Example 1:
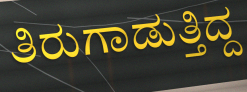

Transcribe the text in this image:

ತಿರುಗಾಡುತ್ತಿದ್ದ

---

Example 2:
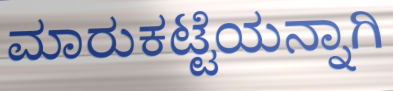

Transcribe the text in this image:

ಮಾರುಕಟ್ಟೆಯನ್ನಾಗಿ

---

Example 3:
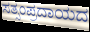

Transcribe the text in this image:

ಸತ್ಸಂಪ್ರದಾಯದ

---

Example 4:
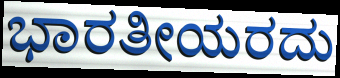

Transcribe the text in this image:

ಭಾರತೀಯರದು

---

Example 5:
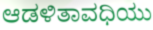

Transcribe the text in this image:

ಆಡಳಿತಾವಧಿಯು